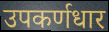
उपकर्णधार